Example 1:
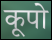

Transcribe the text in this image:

कूपो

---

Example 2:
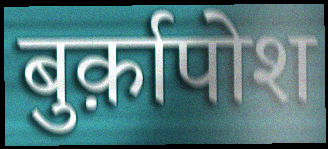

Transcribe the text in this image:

बुर्क़ापोश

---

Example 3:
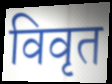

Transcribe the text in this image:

विवृत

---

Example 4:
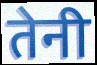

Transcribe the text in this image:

तेनी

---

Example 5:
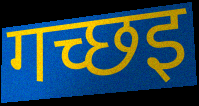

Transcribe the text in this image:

गच्छइ